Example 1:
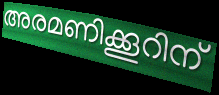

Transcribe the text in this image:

അരമണിക്കൂറിന്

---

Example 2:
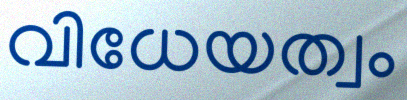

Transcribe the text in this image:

വിധേയത്വം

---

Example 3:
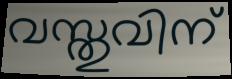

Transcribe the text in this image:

വസ്തുവിന്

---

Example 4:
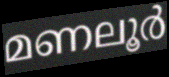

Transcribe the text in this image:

മണലൂർ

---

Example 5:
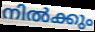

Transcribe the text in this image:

നിൽക്കും